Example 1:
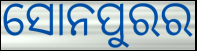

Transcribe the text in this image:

ସୋନପୁରର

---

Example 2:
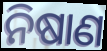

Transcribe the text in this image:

ନିଷାଣ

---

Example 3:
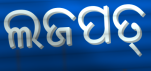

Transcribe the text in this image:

ଲଜପତ୍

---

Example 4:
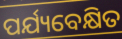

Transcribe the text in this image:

ପର୍ଯ୍ୟବେକ୍ଷିତ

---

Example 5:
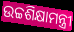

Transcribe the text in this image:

ଉଚ୍ଚଶିକ୍ଷାମନ୍ତ୍ରୀ